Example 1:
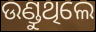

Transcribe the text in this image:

ଉଣ୍ଡୁଥିଲେ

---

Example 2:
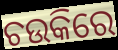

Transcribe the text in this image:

ଚଉକିରେ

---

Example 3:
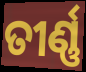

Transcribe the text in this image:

ତୀର୍ଣ୍ଣ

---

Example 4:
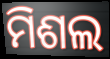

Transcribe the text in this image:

ମିଶଲ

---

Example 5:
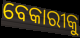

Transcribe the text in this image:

ବେକାରୀକୁ